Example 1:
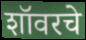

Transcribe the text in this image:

शॉवरचे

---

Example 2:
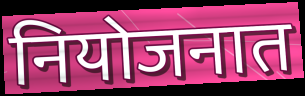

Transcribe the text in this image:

नियोजनात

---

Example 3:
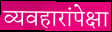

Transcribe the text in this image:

व्यवहारांपेक्षा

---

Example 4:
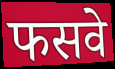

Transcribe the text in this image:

फसवे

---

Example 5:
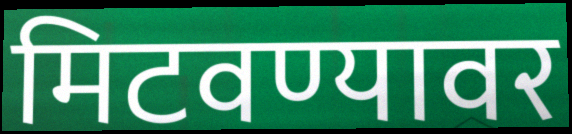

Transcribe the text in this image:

मिटवण्यावर